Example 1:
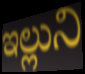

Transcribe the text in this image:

ఇల్లుని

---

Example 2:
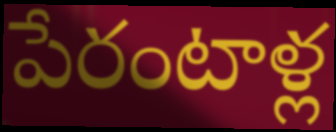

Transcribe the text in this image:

పేరంటాళ్ల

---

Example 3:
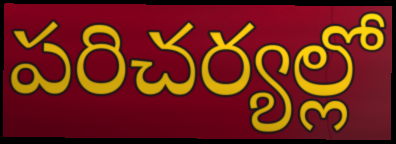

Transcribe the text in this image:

పరిచర్యల్లో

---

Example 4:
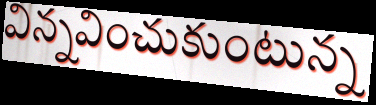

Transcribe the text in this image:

విన్నవించుకుంటున్న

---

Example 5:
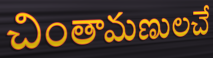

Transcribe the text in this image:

చింతామణులచే